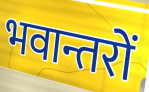
भवान्तरों